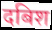
दबिश